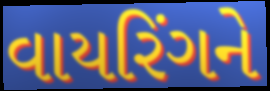
વાયરિંગને